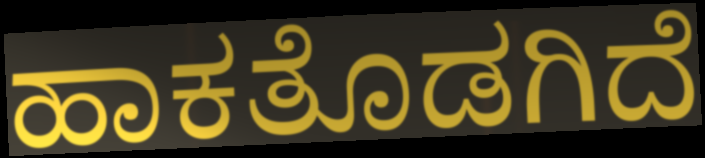
ಹಾಕತೊಡಗಿದೆ